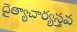
దైత్యాచార్యస్తవ